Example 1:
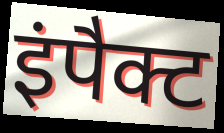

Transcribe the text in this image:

इंपैक्ट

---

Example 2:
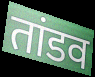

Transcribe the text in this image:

तांडव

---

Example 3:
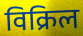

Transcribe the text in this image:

विक्रिल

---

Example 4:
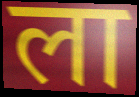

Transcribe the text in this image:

ला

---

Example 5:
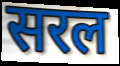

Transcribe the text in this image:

सरल